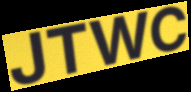
JTWC